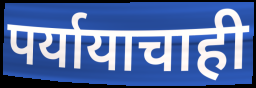
पर्यायाचाही